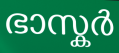
ഭാസ്കർ